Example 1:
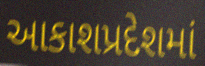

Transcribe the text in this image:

આકાશપ્રદેશમાં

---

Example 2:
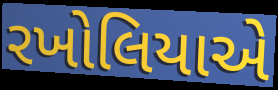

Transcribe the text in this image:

રખોલિયાએ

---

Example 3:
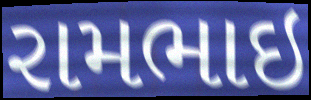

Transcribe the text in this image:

રામભાઇ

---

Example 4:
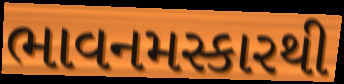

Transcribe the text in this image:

ભાવનમસ્કારથી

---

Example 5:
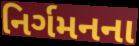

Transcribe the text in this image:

નિર્ગમનના